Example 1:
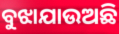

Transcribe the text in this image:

ବୁଝାଯାଉଅଛି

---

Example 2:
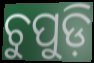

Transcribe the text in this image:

ଚୁପୁଡ଼ି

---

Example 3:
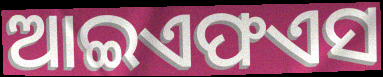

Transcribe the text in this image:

ଆଇଏଫଏସ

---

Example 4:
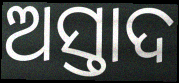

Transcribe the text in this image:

ଅସ୍ତାଦ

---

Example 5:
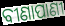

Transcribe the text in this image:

ବୀଣାପାଣୀ